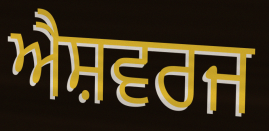
ਐਸ਼ਵਰਜ